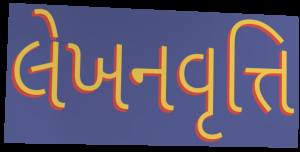
લેખનવૃત્તિ